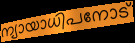
ന്യായാധിപനോട്